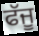
ਫੱਜੂ